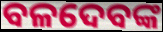
ବଳଦେବଙ୍କ